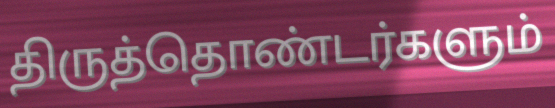
திருத்தொண்டர்களும்